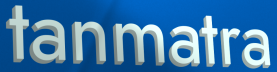
tanmatra